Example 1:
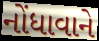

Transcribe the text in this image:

નોંધાવાને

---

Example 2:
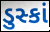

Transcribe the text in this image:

ડુસ્કાં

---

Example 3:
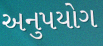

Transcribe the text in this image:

અનુપયોગ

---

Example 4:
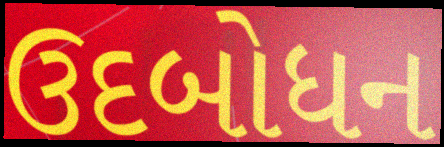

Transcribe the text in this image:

ઉદબોધન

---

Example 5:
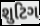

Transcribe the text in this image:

શુટિગ